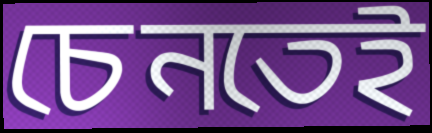
চেনতেই